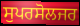
ਸੁਪਰਸੋਲਜਰ